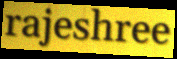
rajeshree